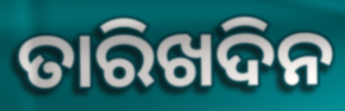
ତାରିଖଦିନ